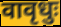
वावृधुः